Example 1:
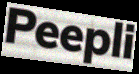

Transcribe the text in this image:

Peepli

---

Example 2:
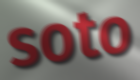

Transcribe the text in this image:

soto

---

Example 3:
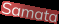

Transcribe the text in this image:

Samata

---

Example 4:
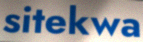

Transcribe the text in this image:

sitekwa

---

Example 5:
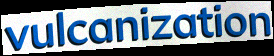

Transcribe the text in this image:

vulcanization